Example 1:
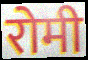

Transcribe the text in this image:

रोमी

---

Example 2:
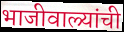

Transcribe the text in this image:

भाजीवाल्यांची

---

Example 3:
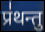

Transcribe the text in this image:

प्र॑थन्तु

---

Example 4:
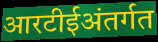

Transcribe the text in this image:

आरटीईअंतर्गत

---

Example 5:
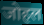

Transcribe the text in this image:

जोहल